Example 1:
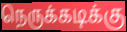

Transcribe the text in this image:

நெருக்கடிக்கு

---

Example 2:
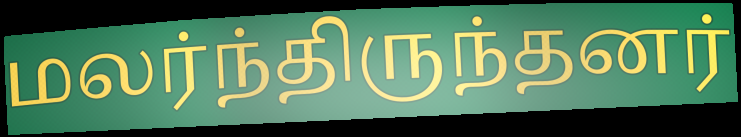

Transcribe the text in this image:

மலர்ந்திருந்தனர்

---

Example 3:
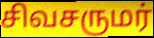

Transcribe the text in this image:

சிவசருமர்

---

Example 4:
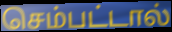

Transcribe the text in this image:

செம்பட்டால்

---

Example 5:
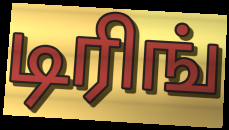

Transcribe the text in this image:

டிரிங்